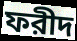
ফরীদ